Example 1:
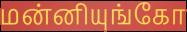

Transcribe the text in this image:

மன்னியுங்கோ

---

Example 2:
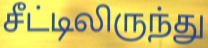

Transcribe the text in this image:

சீட்டிலிருந்து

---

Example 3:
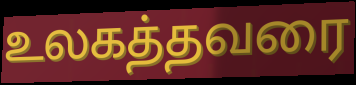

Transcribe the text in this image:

உலகத்தவரை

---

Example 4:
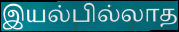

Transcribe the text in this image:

இயல்பில்லாத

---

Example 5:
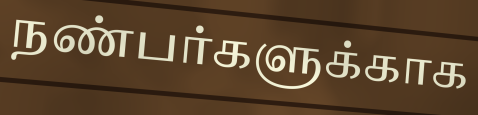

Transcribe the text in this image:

நண்பர்களுக்காக